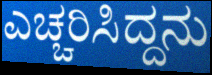
ಎಚ್ಚರಿಸಿದ್ದನು